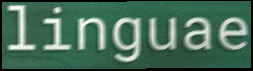
linguae